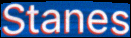
Stanes